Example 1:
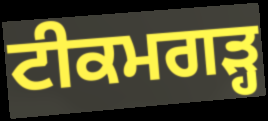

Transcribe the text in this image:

ਟੀਕਮਗੜ੍ਹ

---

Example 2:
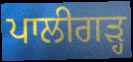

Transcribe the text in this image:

ਪਾਲੀਗੜ੍ਹ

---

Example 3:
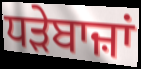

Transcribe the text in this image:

ਧੜੇਬਾਜ਼ਾਂ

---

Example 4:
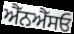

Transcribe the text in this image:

ਐੱਨਐੱਸਓ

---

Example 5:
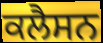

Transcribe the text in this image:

ਕਲੈਸਨ